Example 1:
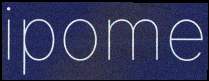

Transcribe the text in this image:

ipome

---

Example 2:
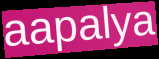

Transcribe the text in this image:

aapalya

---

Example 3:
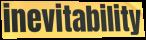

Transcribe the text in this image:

inevitability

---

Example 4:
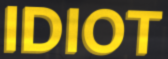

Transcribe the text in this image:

IDIOT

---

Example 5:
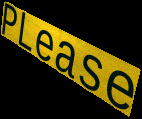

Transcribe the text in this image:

PLease